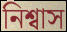
নিশ্বাস